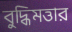
বুদ্ধিমত্তার